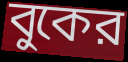
বুকের